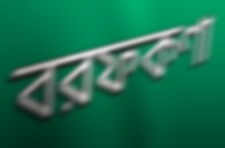
বরফকণা